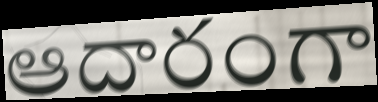
ఆదారంగా